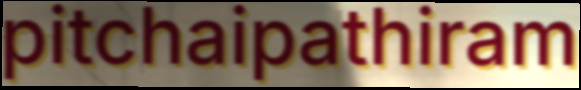
pitchaipathiram